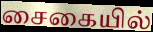
சைகையில்